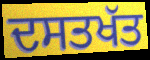
ਦਸਤਖੱਤ